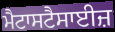
ਮੈਟਾਸਟੈਸਾਈਜ਼